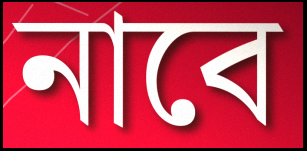
নাবে